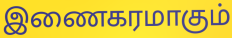
இணைகரமாகும்